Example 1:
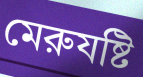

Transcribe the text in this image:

মেরুযষ্টি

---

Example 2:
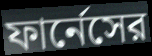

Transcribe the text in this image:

ফার্নেসের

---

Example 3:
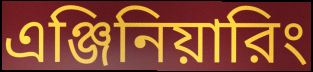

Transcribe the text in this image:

এঞ্জিনিয়ারিং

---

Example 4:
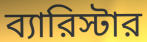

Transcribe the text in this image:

ব্যারিস্টার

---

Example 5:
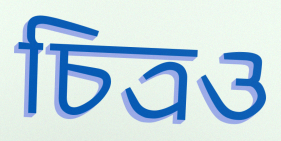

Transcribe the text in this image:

চিত্রও